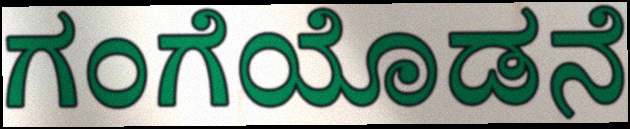
ಗಂಗೆಯೊಡನೆ